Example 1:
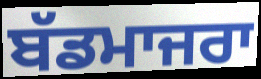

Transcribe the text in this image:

ਬੱਡਮਾਜਰਾ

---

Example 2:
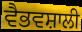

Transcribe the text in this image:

ਵੈਭਵਸ਼ਾਲੀ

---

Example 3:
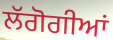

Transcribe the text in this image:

ਲੱਗੋਗੀਆਂ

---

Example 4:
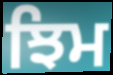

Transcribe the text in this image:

ਝਿਮ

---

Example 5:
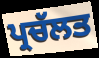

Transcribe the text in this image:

ਪ੍ਰਚੱਲਤ